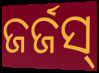
ଜର୍ଜସ୍